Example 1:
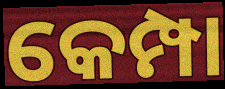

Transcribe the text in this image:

କେମ୍ପା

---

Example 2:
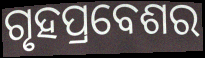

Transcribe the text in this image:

ଗୃହପ୍ରବେଶର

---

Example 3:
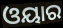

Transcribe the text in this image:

ଓୟାର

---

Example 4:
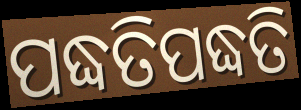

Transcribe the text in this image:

ପଦ୍ଧତିପଦ୍ଧତି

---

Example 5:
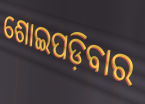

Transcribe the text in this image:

ଶୋଇପଡ଼ିବାର